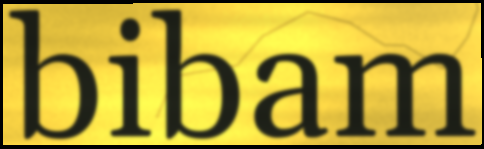
bibam